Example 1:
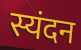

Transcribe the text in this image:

स्यंदन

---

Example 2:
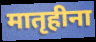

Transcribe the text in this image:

मातृहीना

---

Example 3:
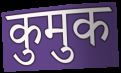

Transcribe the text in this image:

कुमुक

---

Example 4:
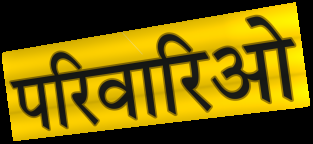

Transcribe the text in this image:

परिवारिओ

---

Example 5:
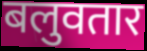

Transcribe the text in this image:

बलुवतार